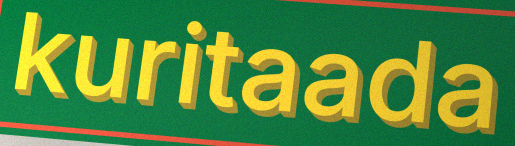
kuritaada